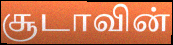
சூடாவின்